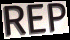
REP